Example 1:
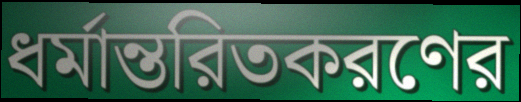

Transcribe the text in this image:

ধর্মান্তরিতকরণের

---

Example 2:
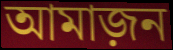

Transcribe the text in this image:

আমাজ়ন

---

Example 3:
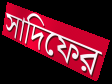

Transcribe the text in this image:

সাদিফের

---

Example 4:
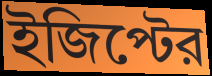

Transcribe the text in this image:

ইজিপ্টের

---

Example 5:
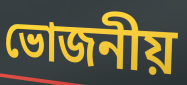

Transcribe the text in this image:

ভোজনীয়